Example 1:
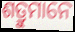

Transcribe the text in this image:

ଶତ୍ରୁମାନେ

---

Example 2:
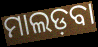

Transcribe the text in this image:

ମାଲଡ଼ବା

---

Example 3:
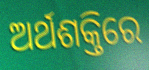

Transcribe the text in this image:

ଅର୍ଥଶକ୍ତିରେ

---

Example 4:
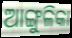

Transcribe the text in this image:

ଆଙ୍ଗୁଳିକା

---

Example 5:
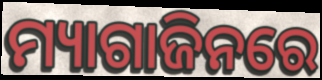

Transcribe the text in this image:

ମ୍ୟାଗାଜିନରେ